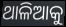
ଥାଳିଆକୁ